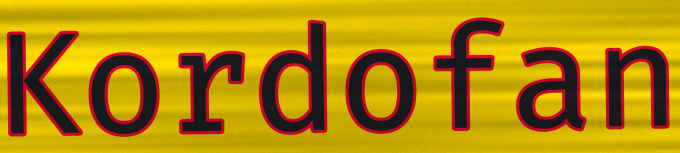
Kordofan